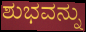
ಶುಭವನ್ನು